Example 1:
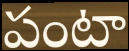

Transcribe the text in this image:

పంటా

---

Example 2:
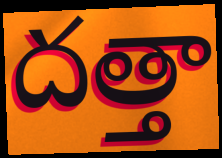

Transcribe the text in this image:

దత్తా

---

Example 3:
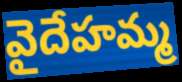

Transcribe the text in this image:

వైదేహమ్మ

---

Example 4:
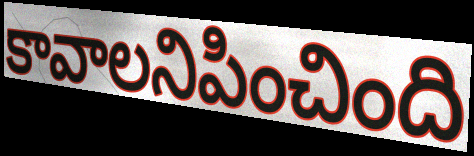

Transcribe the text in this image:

కావాలనిపించింది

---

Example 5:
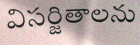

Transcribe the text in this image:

విసర్జితాలను